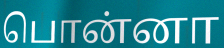
பொன்னா